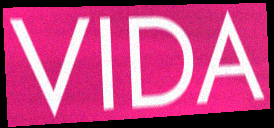
VIDA